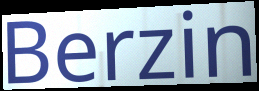
Berzin